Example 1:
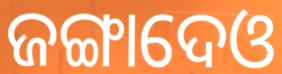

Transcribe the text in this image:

ଜଙ୍ଗାଦେଓ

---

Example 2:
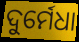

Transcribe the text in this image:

ଦୁର୍ମେଧା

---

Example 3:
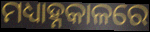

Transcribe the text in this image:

ମଧ୍ୟାହ୍ନକାଳରେ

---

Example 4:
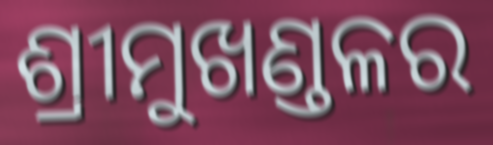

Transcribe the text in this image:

ଶ୍ରୀମୁଖଣ୍ଡଳର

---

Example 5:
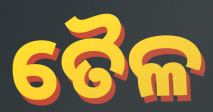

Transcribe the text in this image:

ତୈଳ